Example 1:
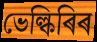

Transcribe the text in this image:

ভেল্কিৰিৰ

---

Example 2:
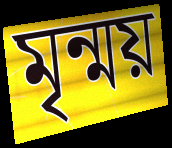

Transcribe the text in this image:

মৃন্ময়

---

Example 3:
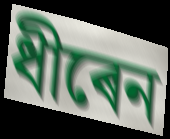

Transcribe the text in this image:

ধীৰেন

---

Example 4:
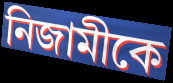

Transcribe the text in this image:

নিজামীকে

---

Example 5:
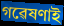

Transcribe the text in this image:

গৱেষণাই